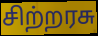
சிற்றரசு